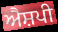
ਐਸ਼ਪੀ